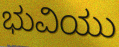
ಭುವಿಯು